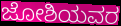
ಜೋಶಿಯವರ